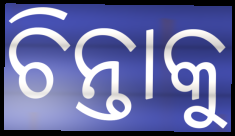
ଚିନ୍ତାକୁ